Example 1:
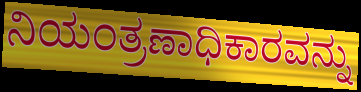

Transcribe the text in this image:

ನಿಯಂತ್ರಣಾಧಿಕಾರವನ್ನು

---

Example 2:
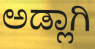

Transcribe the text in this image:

ಅಡ್ಲಾಗಿ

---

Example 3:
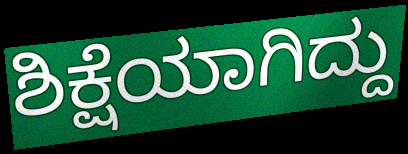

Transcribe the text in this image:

ಶಿಕ್ಷೆಯಾಗಿದ್ದು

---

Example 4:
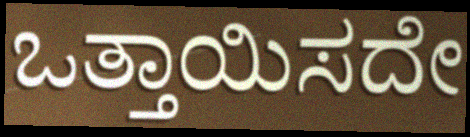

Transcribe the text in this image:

ಒತ್ತಾಯಿಸದೇ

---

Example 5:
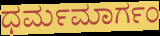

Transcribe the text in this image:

ಧರ್ಮಮಾರ್ಗಂ